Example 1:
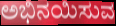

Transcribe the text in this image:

ಅಭಿನಯಿಸುವ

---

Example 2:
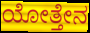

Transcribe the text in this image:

ಯೋತ್ತೇನ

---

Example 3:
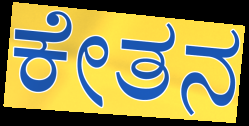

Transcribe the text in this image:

ಕೇತನ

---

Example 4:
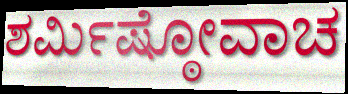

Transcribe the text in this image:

ಶರ್ಮಿಷ್ಠೋವಾಚ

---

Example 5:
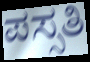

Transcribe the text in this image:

ಪಸ್ಸತಿ